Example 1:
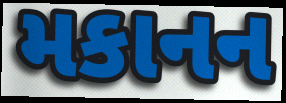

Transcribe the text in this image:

મકાનન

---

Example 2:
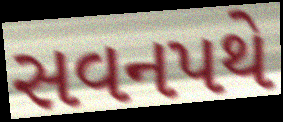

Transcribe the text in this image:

સવનપથે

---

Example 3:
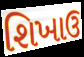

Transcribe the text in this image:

શિખાઉ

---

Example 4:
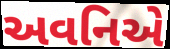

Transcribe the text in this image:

અવનિએ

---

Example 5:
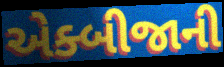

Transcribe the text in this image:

એક્બીજાની